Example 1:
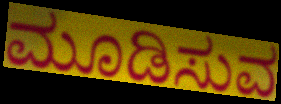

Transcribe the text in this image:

ಮೂಡಿಸುವ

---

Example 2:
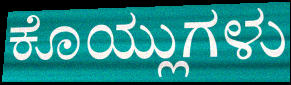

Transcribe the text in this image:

ಕೊಯ್ಲುಗಳು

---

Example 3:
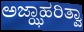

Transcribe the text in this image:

ಅಜ್ಝಾಹರಿತ್ವಾ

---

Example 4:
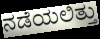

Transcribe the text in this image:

ನಡೆಯಲಿತ್ತು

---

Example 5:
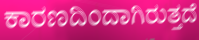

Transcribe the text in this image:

ಕಾರಣದಿಂದಾಗಿರುತ್ತದೆ